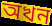
অখন